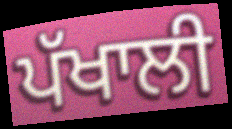
ਪੱਖਾਲੀ